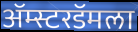
ॲम्स्टरडॅमला